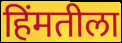
हिंमतीला